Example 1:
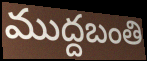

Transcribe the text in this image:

ముద్దబంతి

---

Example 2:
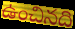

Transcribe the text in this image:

ఉంచినది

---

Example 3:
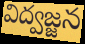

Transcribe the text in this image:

విద్వజ్జన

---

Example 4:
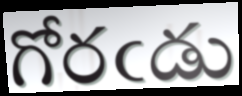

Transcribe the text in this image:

గోరఁడు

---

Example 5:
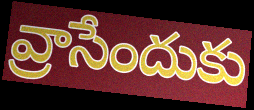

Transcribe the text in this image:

వ్రాసేందుకు